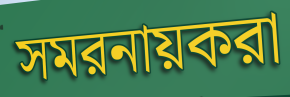
সমরনায়করা